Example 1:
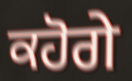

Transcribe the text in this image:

ਕਹੋਗੇ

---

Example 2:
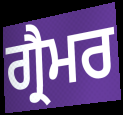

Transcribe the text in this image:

ਗ੍ਰੈਮਰ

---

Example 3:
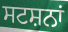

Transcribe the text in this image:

ਸਟਸ਼ਨਾਂ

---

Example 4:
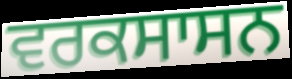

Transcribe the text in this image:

ਵਰਕਸਾਸਨ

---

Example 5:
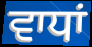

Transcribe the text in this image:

ਵਾਧਾਂ